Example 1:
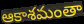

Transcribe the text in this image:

ఆకాశమంతా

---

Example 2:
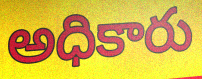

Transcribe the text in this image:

అధికారు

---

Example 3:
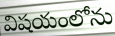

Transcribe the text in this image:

విషయంలోను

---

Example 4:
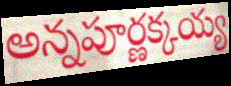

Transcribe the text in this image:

అన్నపూర్ణక్కయ్య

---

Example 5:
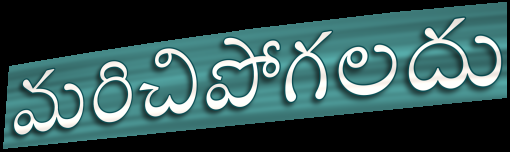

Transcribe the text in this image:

మరిచిపోగలదు